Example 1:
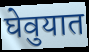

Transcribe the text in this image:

घेवुयात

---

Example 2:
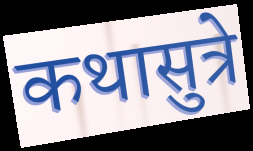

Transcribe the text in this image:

कथासुत्रे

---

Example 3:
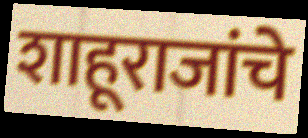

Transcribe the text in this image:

शाहूराजांचे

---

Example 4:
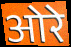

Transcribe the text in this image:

ओरे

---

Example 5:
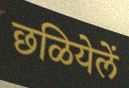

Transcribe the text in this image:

छळियेलें